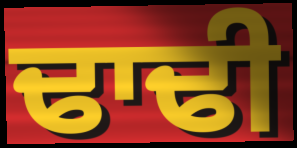
ਢਾਢੀ